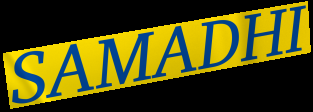
SAMADHI